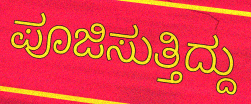
ಪೂಜಿಸುತ್ತಿದ್ದು